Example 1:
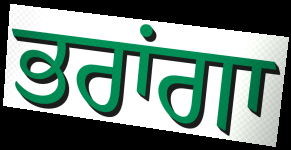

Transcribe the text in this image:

ਭਰਾਂਗਾ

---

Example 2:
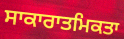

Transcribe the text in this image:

ਸਾਕਾਰਾਤਮਿਕਤਾ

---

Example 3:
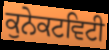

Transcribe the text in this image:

ਕੁਨੇਕਟਵਿਟੀ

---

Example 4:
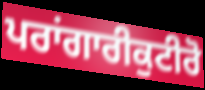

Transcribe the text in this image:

ਪਰਾਂਗਾਰੀਕੁਟੀਰੋ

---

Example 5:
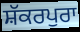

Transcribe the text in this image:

ਸ਼ੱਕਰਪੁਰਾ